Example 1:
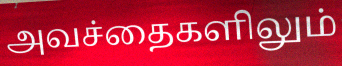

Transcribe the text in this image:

அவச்தைகளிலும்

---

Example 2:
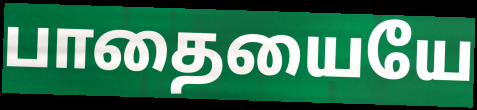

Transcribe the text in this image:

பாதையையே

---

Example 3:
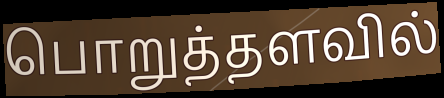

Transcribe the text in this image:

பொறுத்தளவில்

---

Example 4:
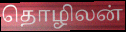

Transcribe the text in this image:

தொழிலன்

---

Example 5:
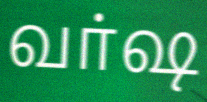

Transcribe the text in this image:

வர்ஷ